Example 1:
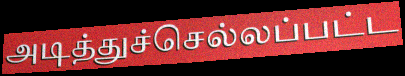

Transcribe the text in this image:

அடித்துச்செல்லப்பட்ட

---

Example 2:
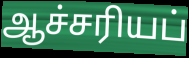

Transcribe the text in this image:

ஆச்சரியப்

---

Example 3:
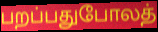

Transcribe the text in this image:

பறப்பதுபோலத்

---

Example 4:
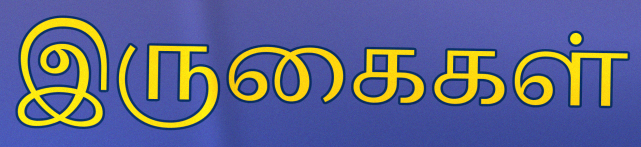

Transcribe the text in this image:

இருகைகள்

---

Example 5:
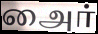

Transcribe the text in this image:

அைர்